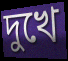
দুখে